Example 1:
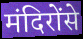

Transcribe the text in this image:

मंदिरोंसे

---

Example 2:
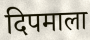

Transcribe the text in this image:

दिपमाला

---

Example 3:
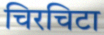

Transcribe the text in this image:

चिरचिटा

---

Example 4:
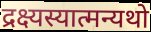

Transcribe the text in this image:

द्रक्ष्यस्यात्मन्यथो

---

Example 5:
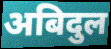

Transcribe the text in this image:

अबिदुल